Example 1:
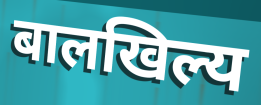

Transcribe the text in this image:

बालखिल्य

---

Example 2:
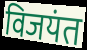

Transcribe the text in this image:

विजयंत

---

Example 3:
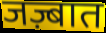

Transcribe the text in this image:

जज़्बात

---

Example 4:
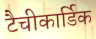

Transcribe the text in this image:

टैचीकार्डिक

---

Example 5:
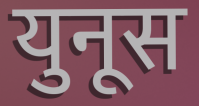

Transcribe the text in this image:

युनूस